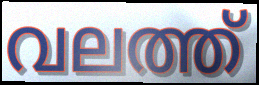
വലത്ത്